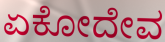
ಏಕೋದೇವ